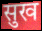
सुख